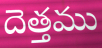
దెత్తము